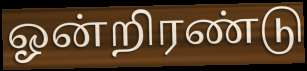
ஓன்றிரண்டு